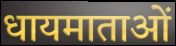
धायमाताओं